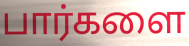
பார்களை